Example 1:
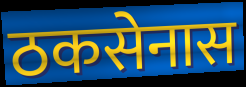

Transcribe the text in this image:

ठकसेनास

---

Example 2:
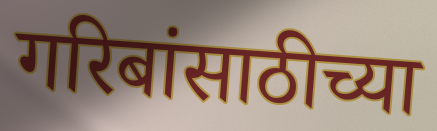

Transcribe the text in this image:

गरिबांसाठीच्या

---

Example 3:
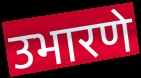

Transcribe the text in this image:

उभारणे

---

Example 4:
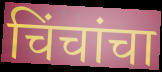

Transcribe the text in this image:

चिंचांचा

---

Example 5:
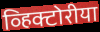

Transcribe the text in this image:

व्हिक्टोरीया